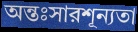
অন্তঃসারশূন্যতা